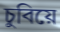
চুবিয়ে